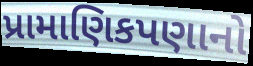
પ્રામાણિકપણાનો